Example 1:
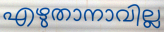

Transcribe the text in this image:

എഴുതാനാവില്ല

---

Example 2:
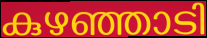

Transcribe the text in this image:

കുഴഞ്ഞാടി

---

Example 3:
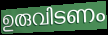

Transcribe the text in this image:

ഉരുവിടണം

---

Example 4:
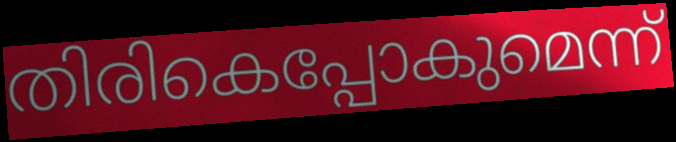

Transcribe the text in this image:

തിരികെപ്പോകുമെന്ന്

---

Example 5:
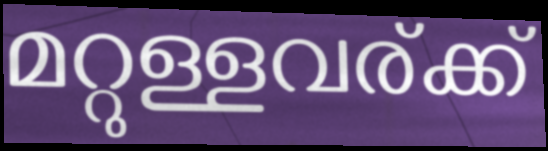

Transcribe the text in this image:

മറ്റുള്ളവര്ക്ക്